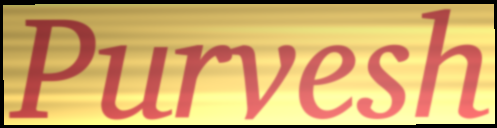
Purvesh